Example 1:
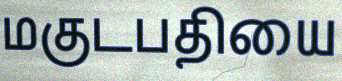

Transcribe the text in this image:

மகுடபதியை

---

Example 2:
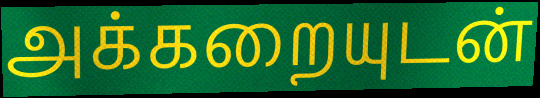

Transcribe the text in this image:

அக்கறையுடன்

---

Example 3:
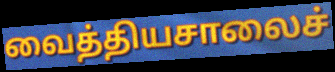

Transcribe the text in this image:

வைத்தியசாலைச்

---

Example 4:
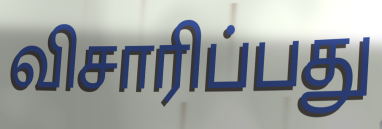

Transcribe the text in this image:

விசாரிப்பது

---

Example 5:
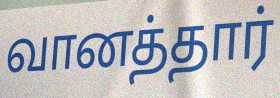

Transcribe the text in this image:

வானத்தார்